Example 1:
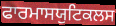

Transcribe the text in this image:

ਫਾਰਮਾਸਯੁਟਿਕਲਸ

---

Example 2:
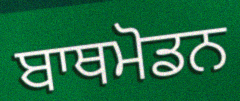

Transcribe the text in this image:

ਬਾਥਮੋਡਨ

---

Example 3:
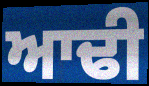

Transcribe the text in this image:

ਆਢੀ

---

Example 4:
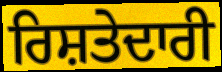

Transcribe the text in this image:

ਰਿਸ਼ਤੇਦਾਰੀ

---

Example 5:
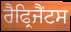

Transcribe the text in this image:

ਰੈਫ੍ਰਿਜੈਂਟਸ